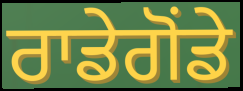
ਰਾਡੇਗੋਂਡੇ